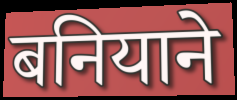
बनियाने